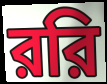
ররি